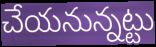
చేయనున్నట్టు